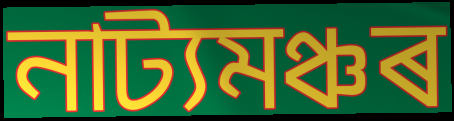
নাট্যমঞ্চৰ